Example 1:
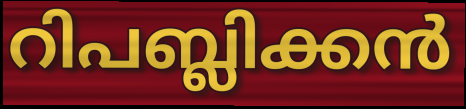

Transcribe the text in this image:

റിപബ്ലിക്കൻ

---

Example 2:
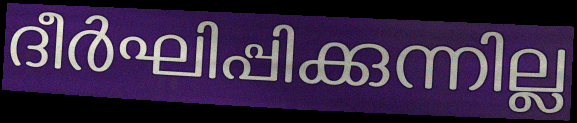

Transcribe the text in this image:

ദീർഘിപ്പിക്കുന്നില്ല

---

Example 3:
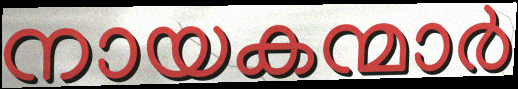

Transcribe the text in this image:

നായകന്മാർ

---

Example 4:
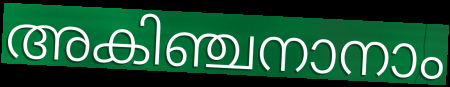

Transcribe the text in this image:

അകിഞ്ചനാനാം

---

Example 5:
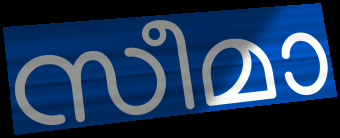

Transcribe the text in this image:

സീമാ